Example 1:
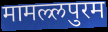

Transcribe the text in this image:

मामल्लपुरम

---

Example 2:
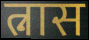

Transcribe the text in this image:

त्नास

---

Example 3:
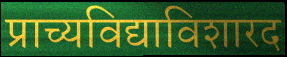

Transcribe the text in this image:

प्राच्यविद्याविशारद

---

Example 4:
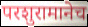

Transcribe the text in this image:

परशुरामानेच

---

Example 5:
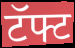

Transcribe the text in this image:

टॅफ्ट